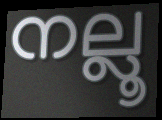
നല്ലൂ